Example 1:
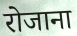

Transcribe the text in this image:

रोजाना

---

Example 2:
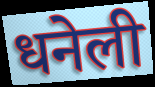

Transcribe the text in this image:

धनेली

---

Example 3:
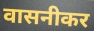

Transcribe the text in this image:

वासनीकर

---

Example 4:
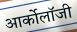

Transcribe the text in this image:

आर्कोलॉजी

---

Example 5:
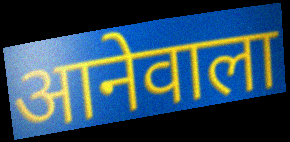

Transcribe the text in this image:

आनेवाला